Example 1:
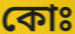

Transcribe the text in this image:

কোঃ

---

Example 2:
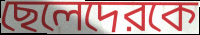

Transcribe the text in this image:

ছেলেদেরকে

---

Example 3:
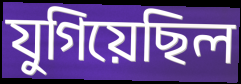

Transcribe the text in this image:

যুগিয়েছিল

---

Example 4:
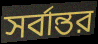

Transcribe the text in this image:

সর্বান্তর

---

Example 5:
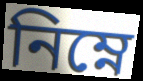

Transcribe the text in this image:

নিম্নে